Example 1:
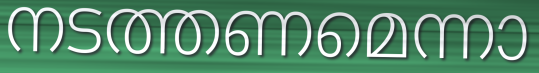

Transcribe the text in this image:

നടത്തണമെന്നാ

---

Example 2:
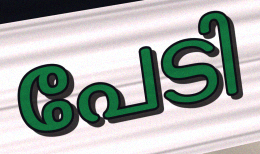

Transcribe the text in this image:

പേടി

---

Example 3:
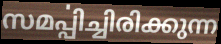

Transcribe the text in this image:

സമൎപ്പിച്ചിരിക്കുന്ന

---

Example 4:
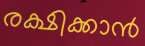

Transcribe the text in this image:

രക്ഷിക്കാൻ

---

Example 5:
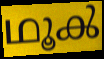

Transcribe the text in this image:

ഥൂൿ